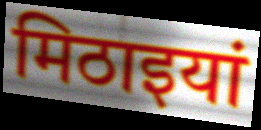
मिठाइयां